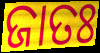
ଜାତଃ